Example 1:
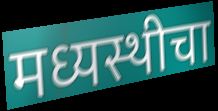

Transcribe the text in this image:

मध्यस्थीचा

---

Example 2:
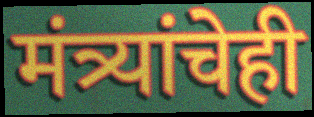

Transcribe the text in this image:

मंत्र्यांचेही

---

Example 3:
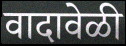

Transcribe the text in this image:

वादावेळी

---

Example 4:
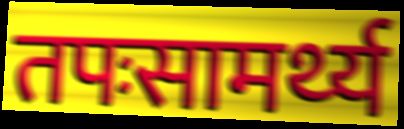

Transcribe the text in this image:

तपःसामर्थ्य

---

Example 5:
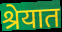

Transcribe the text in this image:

श्रेयात